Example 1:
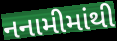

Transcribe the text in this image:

નનામીમાંથી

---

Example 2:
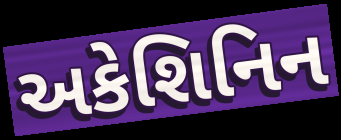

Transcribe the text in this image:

અકેશિનિન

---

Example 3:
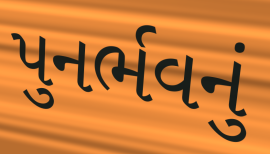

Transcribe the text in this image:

પુનર્ભવનું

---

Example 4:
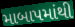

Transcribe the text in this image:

માબાપમાંથી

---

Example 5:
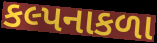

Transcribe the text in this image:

કલ્પનાકળા